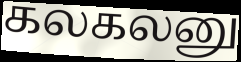
கலகலனு